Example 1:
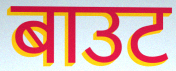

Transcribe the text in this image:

बाउट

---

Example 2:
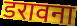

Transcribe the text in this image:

डरावना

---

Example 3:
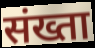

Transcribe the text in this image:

संख्ता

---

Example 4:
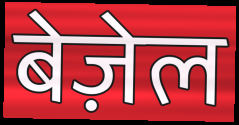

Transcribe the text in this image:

बेज़ेल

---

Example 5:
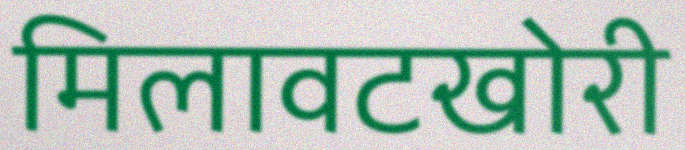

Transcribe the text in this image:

मिलावटखोरी